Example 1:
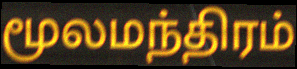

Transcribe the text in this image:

மூலமந்திரம்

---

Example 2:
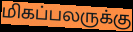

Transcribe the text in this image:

மிகப்பலருக்கு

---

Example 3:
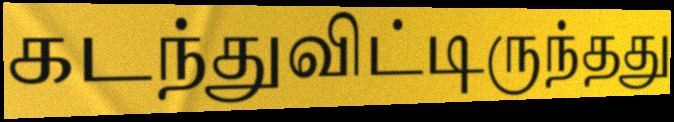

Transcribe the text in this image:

கடந்துவிட்டிருந்தது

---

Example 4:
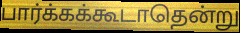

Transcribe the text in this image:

பார்க்கக்கூடாதென்று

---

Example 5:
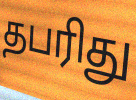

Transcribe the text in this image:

தபரிது